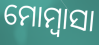
ମୋମ୍ବାସା